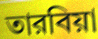
তারবিয়া